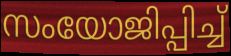
സംയോജിപ്പിച്ച്